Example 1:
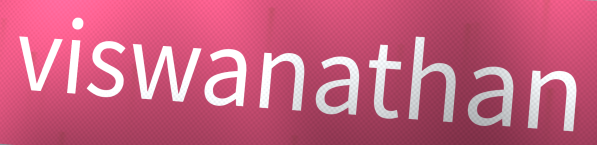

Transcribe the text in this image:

viswanathan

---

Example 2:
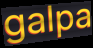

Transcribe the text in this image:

galpa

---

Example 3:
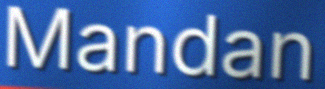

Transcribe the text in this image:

Mandan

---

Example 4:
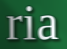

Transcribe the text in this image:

ria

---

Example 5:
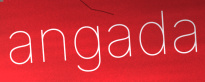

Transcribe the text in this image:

angada